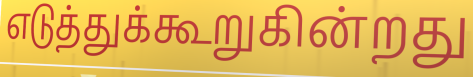
எடுத்துக்கூறுகின்றது